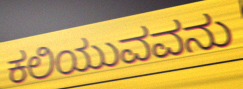
ಕಲಿಯುವವನು